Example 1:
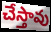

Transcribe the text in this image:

చేస్తావు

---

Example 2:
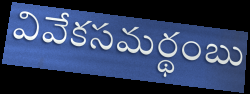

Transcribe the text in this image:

వివేకసమర్థంబు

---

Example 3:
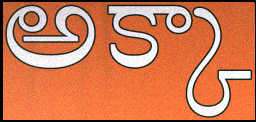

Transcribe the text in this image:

అక్కా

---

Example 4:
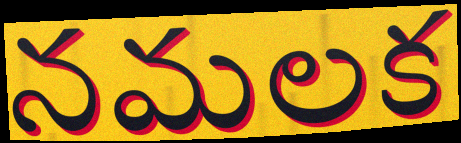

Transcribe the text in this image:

నమలక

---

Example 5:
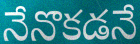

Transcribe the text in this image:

నేనొకడనే